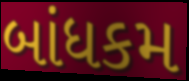
બાંધકમ